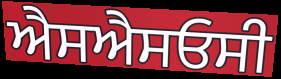
ਐਸਐਸਓਸੀ